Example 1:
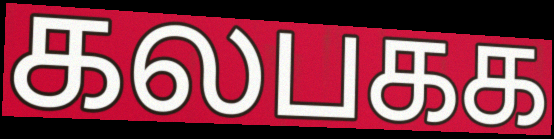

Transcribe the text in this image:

கலபகக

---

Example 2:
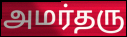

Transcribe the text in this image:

அமர்தரு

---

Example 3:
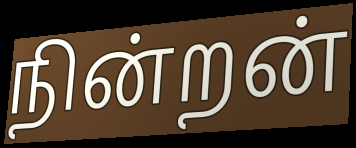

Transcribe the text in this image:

நின்றன்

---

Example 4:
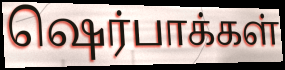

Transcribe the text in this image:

ஷெர்பாக்கள்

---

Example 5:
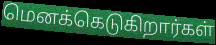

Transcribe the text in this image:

மெனக்கெடுகிறார்கள்